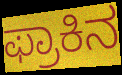
ಫ್ರಾಕಿನ